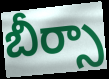
బీర్సా